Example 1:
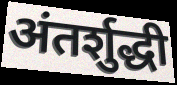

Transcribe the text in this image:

अंतर्शुद्धी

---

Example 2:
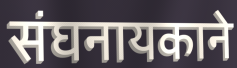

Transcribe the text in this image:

संघनायकाने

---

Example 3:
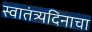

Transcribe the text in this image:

स्वातंत्र्यदिनाचा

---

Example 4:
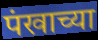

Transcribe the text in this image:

पंखाच्या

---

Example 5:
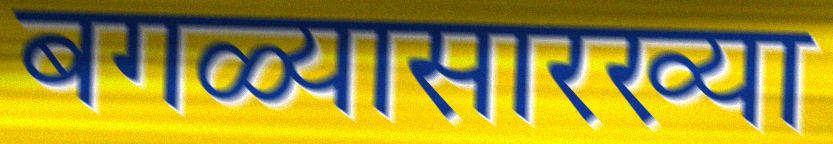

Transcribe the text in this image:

बगळ्यासारख्या